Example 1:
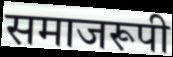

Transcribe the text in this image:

समाजरूपी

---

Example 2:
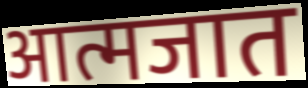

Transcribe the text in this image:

आत्मजात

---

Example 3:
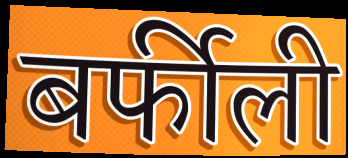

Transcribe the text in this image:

बर्फीली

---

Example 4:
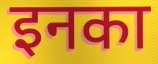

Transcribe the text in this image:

इनका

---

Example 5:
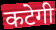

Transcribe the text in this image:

कटेगी